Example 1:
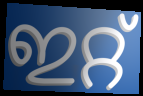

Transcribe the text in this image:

ഇറ്റ്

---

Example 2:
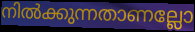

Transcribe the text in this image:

നിൽക്കുന്നതാണല്ലോ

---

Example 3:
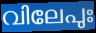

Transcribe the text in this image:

വിലേപുഃ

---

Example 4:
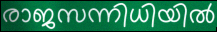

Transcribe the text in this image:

രാജസന്നിധിയിൽ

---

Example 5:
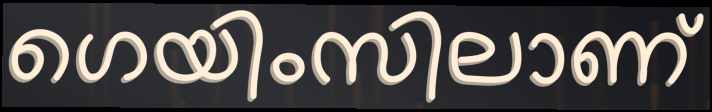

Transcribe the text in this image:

ഗെയിംസിലാണ്